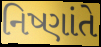
નિષ્ણાંતે